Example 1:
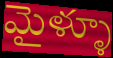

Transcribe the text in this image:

మైళ్ళూ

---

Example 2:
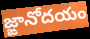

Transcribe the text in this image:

జ్ఙానోదయం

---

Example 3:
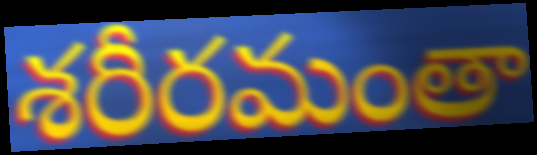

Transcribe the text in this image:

శరీరమంతా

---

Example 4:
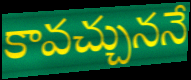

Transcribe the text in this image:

కావచ్చుననే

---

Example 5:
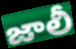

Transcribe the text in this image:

జాలీ